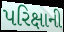
પરિક્ષાની